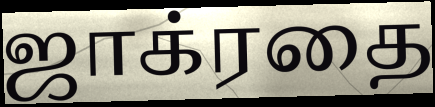
ஜாக்ரதை